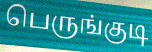
பெருங்குடி